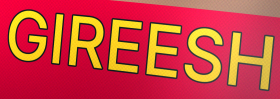
GIREESH